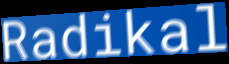
Radikal